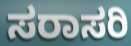
ಸರಾಸರಿ